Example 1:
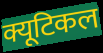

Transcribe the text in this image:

क्यूटिकल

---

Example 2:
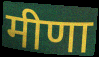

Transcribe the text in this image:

मीणा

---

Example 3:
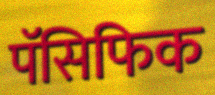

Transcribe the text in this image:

पॅसिफिक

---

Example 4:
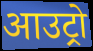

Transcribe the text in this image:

आउट्रो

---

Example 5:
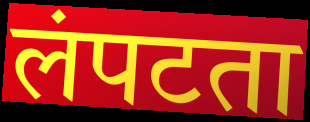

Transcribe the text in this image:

लंपटता